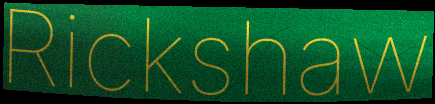
Rickshaw